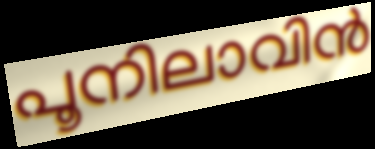
പൂനിലാവിൻ